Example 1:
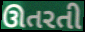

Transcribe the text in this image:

ઊતરતી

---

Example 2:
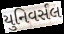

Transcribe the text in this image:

યુનિવર્સલ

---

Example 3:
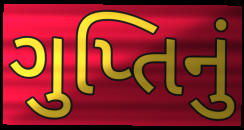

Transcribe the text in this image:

ગુપ્તિનું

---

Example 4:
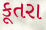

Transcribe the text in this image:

કૂતરા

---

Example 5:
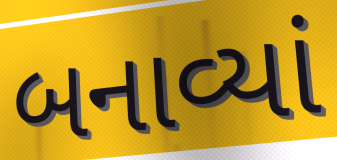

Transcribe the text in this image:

બનાવ્યાં